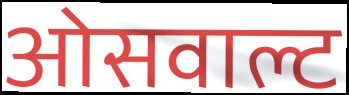
ओसवाल्ट